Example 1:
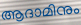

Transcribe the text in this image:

ആദാമിനും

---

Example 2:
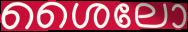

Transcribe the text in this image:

ശൈലോ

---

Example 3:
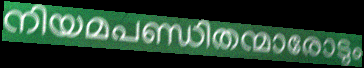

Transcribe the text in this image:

നിയമപണ്ഡിതന്മാരോടും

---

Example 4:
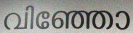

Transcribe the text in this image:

വിഞ്ഞോ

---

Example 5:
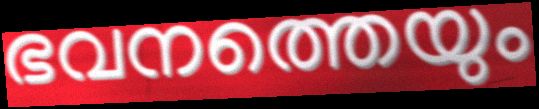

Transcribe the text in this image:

ഭവനത്തെയും